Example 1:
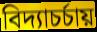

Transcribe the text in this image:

বিদ্যাচর্চায়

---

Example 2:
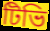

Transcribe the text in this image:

টিভি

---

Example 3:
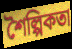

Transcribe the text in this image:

শৈল্পিকতা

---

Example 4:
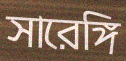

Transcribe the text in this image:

সারেঙ্গি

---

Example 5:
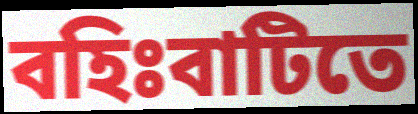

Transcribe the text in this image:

বহিঃবাটিতে